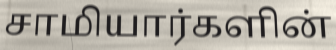
சாமியார்களின்